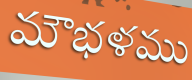
మౌభళము